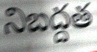
నిబద్దత